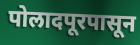
पोलादपूरपासून